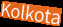
Kolkota